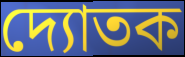
দ্যোতক